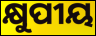
କ୍ଷୁପୀୟ